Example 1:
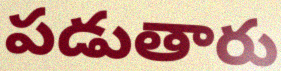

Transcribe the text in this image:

పడుతారు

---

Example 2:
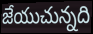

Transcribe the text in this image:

జేయుచున్నది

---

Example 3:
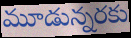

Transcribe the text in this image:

మూడున్నరకు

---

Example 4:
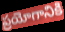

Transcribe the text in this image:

ప్రయోగానికి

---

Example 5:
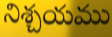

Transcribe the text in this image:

నిశ్చయము